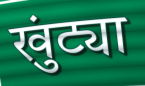
खुंट्या